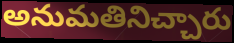
అనుమతినిచ్చారు